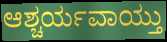
ಆಶ್ಚರ್ಯವಾಯ್ತು